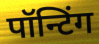
पॉन्टिंग